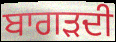
ਬਾਗੜਦੀ